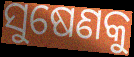
ସୁଷେଣକୁ